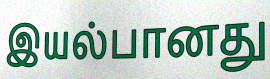
இயல்பானது